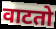
वाटतो